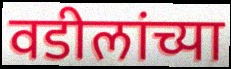
वडीलांच्या